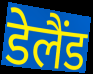
डेलैंड